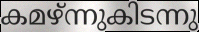
കമഴ്ന്നുകിടന്നു